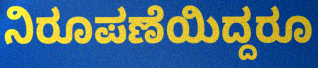
ನಿರೂಪಣೆಯಿದ್ದರೂ